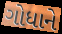
ગોધાને